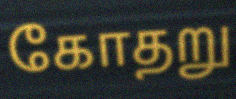
கோதறு